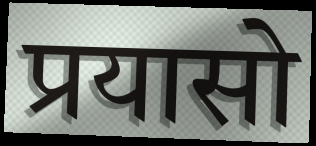
प्रयासो